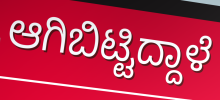
ಆಗಿಬಿಟ್ಟಿದ್ದಾಳೆ